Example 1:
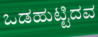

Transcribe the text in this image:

ಒಡಹುಟ್ಟಿದವ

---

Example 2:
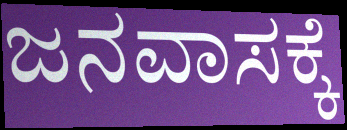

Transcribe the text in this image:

ಜನವಾಸಕ್ಕೆ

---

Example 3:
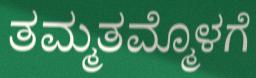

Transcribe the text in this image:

ತಮ್ಮತಮ್ಮೊಳಗೆ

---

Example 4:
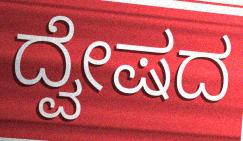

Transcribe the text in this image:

ದ್ವೇಷದ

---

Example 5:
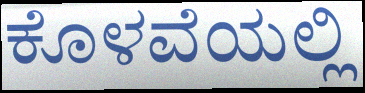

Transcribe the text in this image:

ಕೊಳವೆಯಲ್ಲಿ